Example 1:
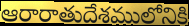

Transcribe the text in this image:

ఆరారాతుదేశములోనికి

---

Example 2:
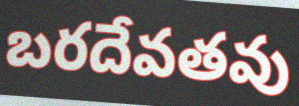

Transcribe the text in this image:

బరదేవతవు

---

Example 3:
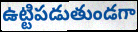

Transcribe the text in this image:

ఉట్టిపడుతుండగా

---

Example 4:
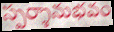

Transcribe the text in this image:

స్పర్శానుభవం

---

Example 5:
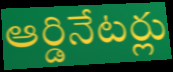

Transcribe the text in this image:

ఆర్డినేటర్లు